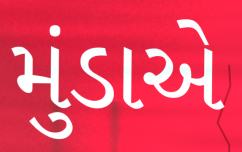
મુંડાએ